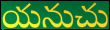
యనుచు